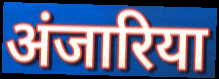
अंजारिया